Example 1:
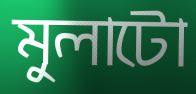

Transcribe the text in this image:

মুলাটো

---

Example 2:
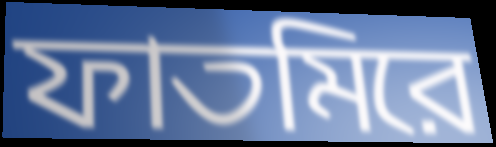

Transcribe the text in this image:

ফাতমিরে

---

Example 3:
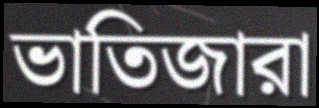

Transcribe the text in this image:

ভাতিজারা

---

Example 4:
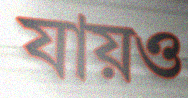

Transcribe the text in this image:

যায়ও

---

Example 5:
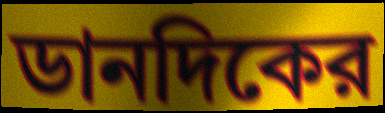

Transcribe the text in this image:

ডানদিকের